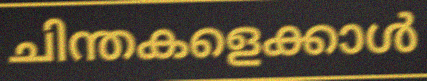
ചിന്തകളെക്കാൾ